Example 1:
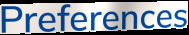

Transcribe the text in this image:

Preferences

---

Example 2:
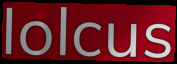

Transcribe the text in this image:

Iolcus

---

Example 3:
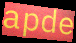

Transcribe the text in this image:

apde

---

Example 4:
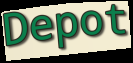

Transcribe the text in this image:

Depot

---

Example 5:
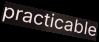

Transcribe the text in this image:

practicable